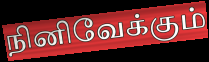
நினிவேக்கும்